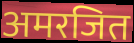
अमरजित